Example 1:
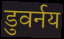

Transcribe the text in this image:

डुवर्नय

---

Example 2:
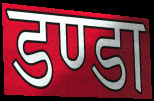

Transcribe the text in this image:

डण्डा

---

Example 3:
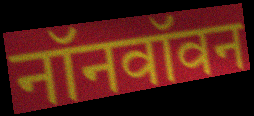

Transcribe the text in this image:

नॉनवॉवन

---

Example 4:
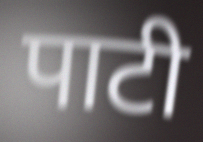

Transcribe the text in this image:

पाटी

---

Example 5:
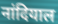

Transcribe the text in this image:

नांदियाल